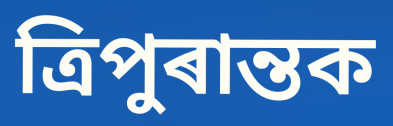
ত্ৰিপুৰান্তক